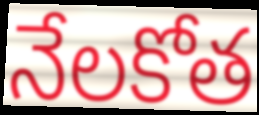
నేలకోత